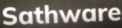
Sathware